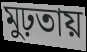
মুঢ়তায়